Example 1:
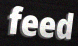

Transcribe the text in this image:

feed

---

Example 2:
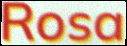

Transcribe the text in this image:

Rosa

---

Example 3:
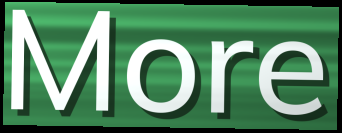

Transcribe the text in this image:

More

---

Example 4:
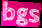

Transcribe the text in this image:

bgs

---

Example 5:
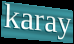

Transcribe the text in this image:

karay